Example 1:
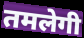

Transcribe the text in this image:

तमलेगी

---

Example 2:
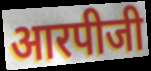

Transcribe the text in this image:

आरपीजी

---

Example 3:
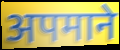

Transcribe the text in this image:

अपमाने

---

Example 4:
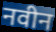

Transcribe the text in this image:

नवीन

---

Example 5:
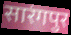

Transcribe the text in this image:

सारंगपुर